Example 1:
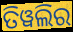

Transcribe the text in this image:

ତିୱଲିର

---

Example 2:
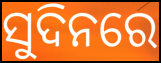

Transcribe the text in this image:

ସୁଦିନରେ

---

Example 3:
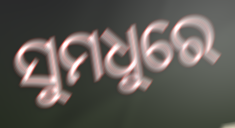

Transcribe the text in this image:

ସୁମଧୁରେ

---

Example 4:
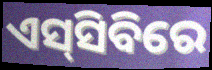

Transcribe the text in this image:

ଏସ୍‌ସିବିରେ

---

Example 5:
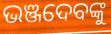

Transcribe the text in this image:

ଭଞ୍ଜଦେବଙ୍କୁ